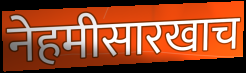
नेहमीसारखाच